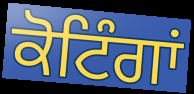
ਕੋਟਿੰਗਾਂ